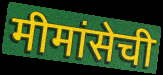
मीमांसेची